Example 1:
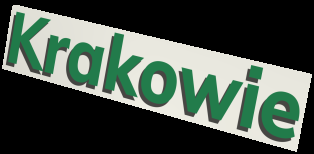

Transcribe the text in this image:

Krakowie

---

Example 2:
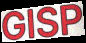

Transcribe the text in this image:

GISP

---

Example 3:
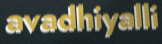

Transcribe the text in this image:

avadhiyalli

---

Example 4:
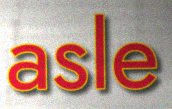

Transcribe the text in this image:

asle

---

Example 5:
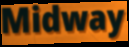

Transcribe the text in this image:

Midway